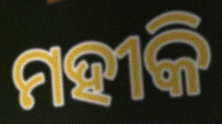
ମହୀକି